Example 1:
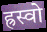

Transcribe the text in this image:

ह्रस्वो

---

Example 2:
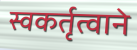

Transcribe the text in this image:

स्वकर्तृत्वाने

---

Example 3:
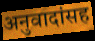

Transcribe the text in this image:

अनुवादांसह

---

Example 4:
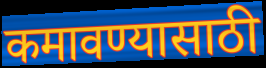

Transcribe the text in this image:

कमावण्यासाठी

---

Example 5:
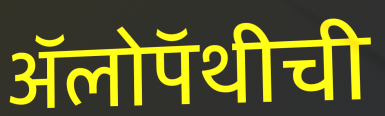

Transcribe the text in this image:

ॲलोपॅथीची